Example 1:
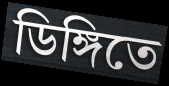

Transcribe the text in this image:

ডিঙ্গিতে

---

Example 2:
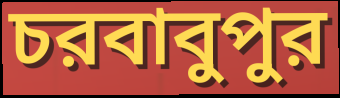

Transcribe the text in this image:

চরবাবুপুর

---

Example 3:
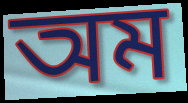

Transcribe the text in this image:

অম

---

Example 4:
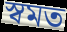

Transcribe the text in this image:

স্বমত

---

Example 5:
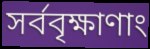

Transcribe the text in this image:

সর্ববৃক্ষাণাং